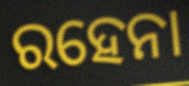
ରହେନା